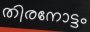
തിരനോട്ടം